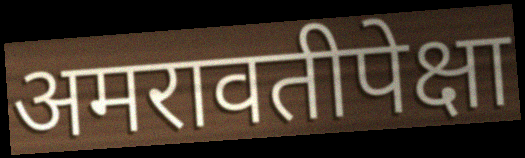
अमरावतीपेक्षा